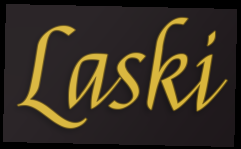
Laski